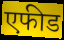
एफीड